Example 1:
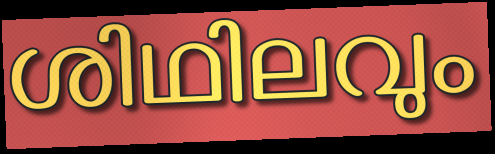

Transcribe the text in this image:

ശിഥിലവും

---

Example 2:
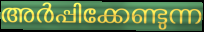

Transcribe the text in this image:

അർപ്പിക്കേണ്ടുന്ന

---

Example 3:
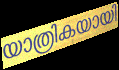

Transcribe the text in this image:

യാത്രികയായി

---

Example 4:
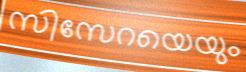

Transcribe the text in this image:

സിസേറയെയും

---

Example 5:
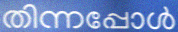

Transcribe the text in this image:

തിന്നപ്പോൾ